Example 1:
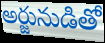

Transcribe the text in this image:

అర్జునుడితో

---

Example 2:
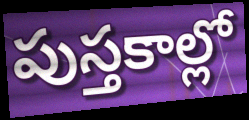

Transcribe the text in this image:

పుస్తకాల్లో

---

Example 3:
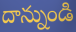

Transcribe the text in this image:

దాన్నుండి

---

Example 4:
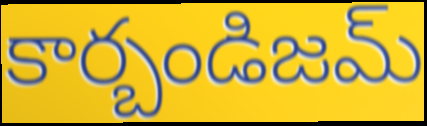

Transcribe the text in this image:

కార్బండిజమ్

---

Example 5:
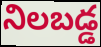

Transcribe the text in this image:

నిలబడ్డ